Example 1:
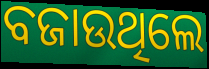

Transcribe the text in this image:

ବଜାଉଥିଲେ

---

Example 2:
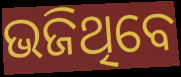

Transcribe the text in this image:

ଭଜିଥିବେ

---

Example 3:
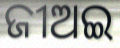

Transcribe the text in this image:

ଜୀଅଇ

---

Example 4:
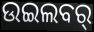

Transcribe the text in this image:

ଉଇଲବର୍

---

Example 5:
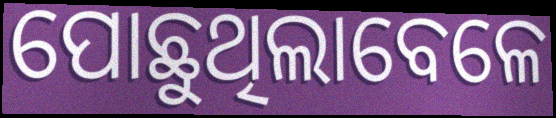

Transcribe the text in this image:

ପୋଛୁଥିଲାବେଳେ